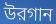
উরগান